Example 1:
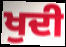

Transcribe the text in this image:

ਖੁਦੀ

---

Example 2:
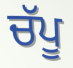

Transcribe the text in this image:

ਚੱਪੂ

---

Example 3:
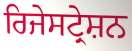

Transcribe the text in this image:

ਰਿਜੇਸਟ੍ਰੇਸ਼ਨ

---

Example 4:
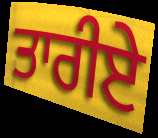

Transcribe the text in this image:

ਤਾਰੀਏ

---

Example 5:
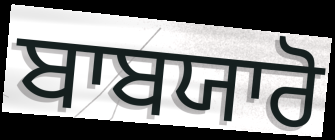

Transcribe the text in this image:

ਬਾਬਯਾਰੋ